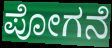
ಪೋಗನೆ